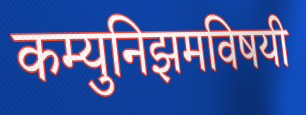
कम्युनिझमविषयी